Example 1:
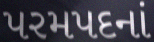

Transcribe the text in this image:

પરમપદનાં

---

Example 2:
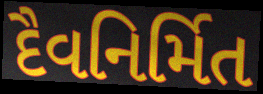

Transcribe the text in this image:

દૈવનિર્મિત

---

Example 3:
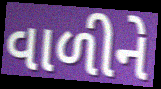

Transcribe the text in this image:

વાળીને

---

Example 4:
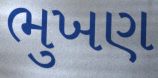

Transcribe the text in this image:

ભુખણ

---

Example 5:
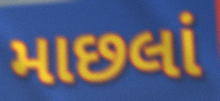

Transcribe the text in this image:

માછલાં